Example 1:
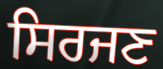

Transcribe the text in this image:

ਸਿਰਜਣ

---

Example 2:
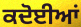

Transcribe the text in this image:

ਕਦੋਈਆਂ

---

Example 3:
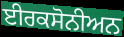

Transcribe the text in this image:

ਈਰਕਸੋਨੀਅਨ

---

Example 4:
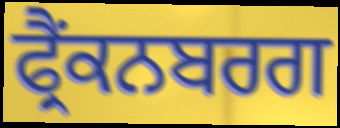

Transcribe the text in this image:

ਫ੍ਰੈਂਕਨਬਰਗ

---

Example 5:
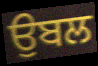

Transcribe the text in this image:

ਉਬਲ